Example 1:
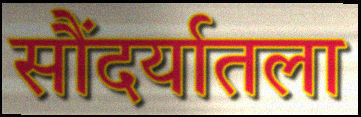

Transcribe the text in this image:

सौंदर्यातला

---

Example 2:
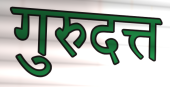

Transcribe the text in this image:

गुरुदत्त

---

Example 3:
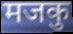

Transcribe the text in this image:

मजकु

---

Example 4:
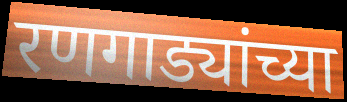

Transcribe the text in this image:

रणगाड्यांच्या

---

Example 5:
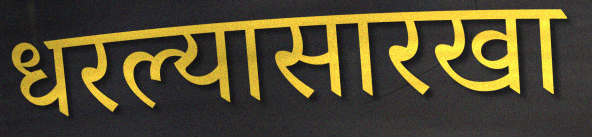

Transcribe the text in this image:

धरल्यासारखा